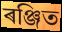
ৰঞ্জিত